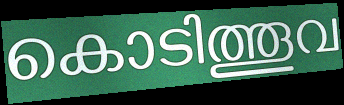
കൊടിത്തൂവ